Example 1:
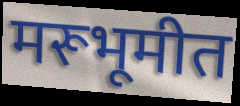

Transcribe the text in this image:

मरूभूमीत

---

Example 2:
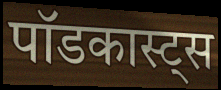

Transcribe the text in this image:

पॉडकास्ट्स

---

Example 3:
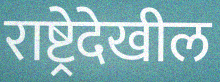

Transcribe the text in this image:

राष्ट्रेदेखील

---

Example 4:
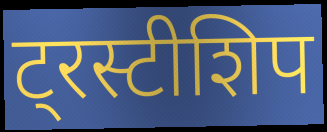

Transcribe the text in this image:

ट्रस्टीशिप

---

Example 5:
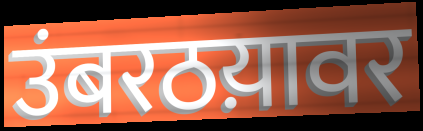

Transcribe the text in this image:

उंबरठय़ावर